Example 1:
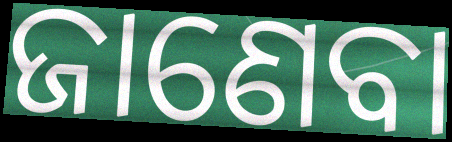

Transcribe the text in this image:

ଜାଣେବା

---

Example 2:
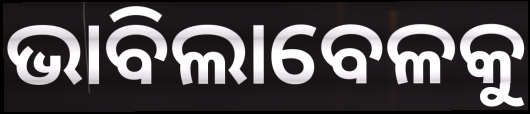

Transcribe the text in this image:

ଭାବିଲାବେଳକୁ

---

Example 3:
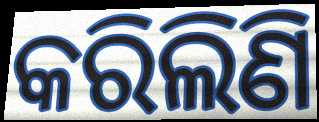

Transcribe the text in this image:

କରିଲିଣି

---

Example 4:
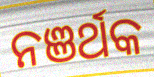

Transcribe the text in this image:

ନଞର୍ଥକ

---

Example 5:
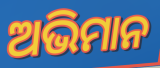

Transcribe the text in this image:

ଅଭିମାନ